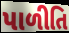
પાળીતિ